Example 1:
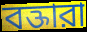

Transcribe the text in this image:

বক্তারা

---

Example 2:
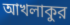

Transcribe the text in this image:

আখলাকুর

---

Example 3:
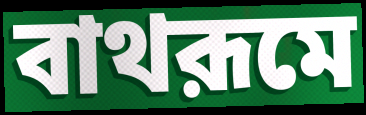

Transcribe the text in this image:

বাথরূমে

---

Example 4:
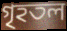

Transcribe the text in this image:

গৃহতল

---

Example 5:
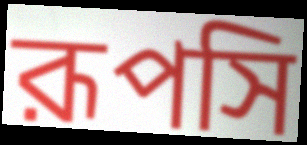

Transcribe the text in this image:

রূপসি